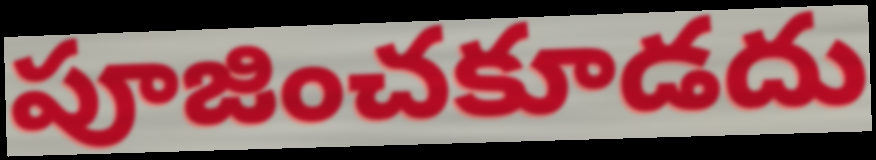
పూజించకూడదు